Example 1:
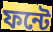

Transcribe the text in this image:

ফন্টে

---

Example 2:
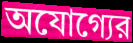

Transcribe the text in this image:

অযোগ্যের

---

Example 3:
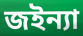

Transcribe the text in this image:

জইন্যা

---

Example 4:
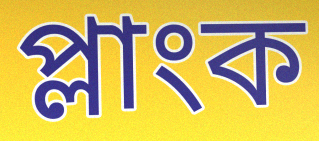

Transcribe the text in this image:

প্লাংক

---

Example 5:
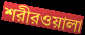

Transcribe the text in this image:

শরীরওয়ালা